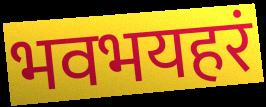
भवभयहरं